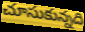
చూసుకున్నది